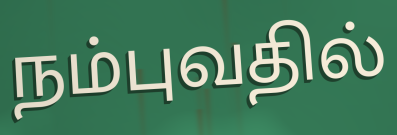
நம்புவதில்